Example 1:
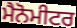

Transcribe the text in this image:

ਮੈਨੋਮੀਟਰ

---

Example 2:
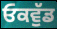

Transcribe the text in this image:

ਓਕਵੁੱਡ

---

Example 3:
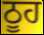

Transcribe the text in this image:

ਠੂਹ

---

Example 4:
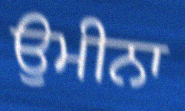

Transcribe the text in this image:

ਉਮੀਨਾ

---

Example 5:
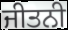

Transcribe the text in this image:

ਜੀਤਨੀ